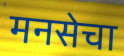
मनसेचा